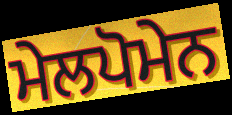
ਮੇਲਪੋਮੇਨ